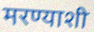
मरण्याशी